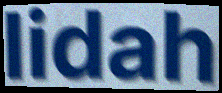
lidah